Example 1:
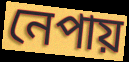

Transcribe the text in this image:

নেপায়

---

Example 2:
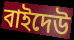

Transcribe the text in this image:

বাইদেউ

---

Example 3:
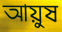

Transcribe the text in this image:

আয়ুষ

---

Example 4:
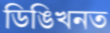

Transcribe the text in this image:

ডিঙিখনত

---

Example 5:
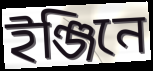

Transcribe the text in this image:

ইঞ্জিনে